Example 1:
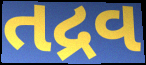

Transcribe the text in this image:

તદ્રવ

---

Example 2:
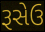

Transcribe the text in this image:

રૂસેઉ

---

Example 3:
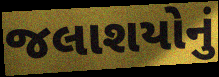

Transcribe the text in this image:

જલાશયોનું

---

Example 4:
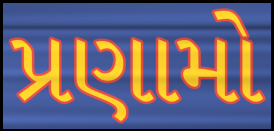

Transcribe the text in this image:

પ્રણામો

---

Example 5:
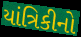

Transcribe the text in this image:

યાંત્રિકીનો